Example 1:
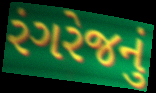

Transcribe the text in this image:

રંગરેજનું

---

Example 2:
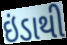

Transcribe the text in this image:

ઇંડાથી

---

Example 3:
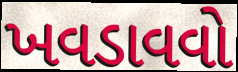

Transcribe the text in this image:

ખવડાવવો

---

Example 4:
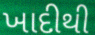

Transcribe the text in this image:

ખાદીથી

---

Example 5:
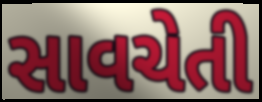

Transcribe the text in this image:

સાવચેતી